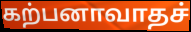
கற்பனாவாதச்